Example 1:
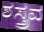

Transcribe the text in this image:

ಶಸ್ತ್ರವ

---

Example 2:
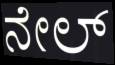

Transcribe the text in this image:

ನೇಲ್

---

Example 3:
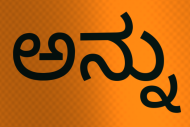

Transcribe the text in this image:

ಅನ್ನು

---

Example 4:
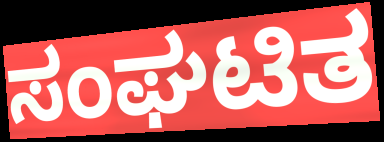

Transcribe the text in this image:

ಸಂಘಟಿತ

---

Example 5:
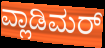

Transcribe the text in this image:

ವ್ಲಾಡಿಮರ್